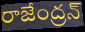
రాజేంద్రన్